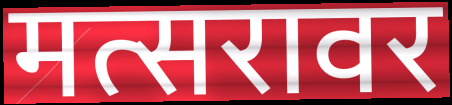
मत्सरावर